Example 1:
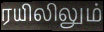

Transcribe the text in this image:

ரயிலிலும்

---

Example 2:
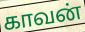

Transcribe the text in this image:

காவன்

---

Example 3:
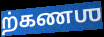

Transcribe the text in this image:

ற்கணஶ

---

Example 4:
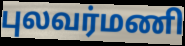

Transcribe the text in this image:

புலவர்மணி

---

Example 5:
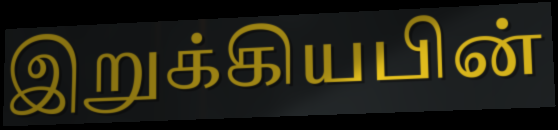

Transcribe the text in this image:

இறுக்கியபின்